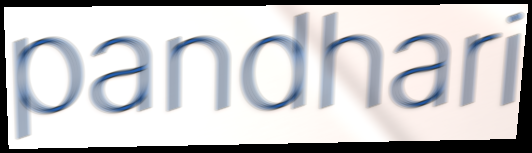
pandhari